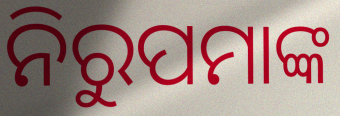
ନିରୁପମାଙ୍କ